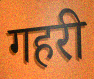
गहरी